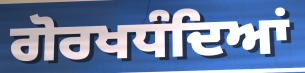
ਗੋਰਖਧੰਦਿਆਂ